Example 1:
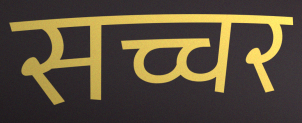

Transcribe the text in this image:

सच्चर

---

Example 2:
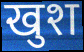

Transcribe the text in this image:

खुश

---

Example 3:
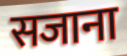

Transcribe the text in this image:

सजाना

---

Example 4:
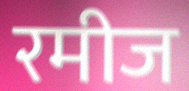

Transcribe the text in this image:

रमीज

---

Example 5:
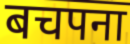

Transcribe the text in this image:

बचपना